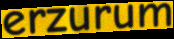
erzurum